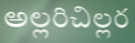
అల్లరిచిల్లర